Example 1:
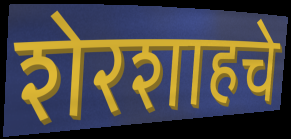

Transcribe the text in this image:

शेरशाहचे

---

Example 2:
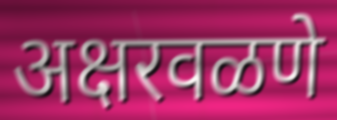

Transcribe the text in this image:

अक्षरवळणे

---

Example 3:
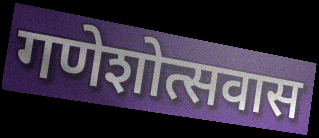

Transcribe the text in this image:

गणेशोत्सवास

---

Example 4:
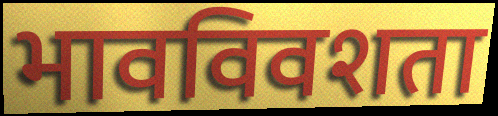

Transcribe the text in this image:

भावविवशता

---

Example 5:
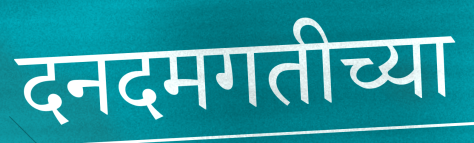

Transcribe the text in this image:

दनदमगतीच्या